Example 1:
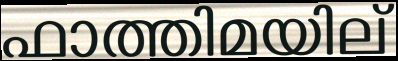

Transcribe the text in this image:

ഫാത്തിമയില്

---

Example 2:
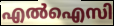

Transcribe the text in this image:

എൽഐസി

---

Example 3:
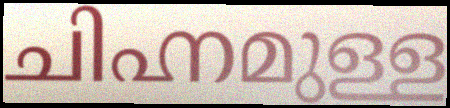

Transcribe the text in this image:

ചിഹ്നമുള്ള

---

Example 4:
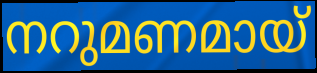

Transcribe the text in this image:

നറുമണമായ്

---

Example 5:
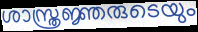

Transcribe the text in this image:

ശാസ്ത്രജ്ഞരുടെയും